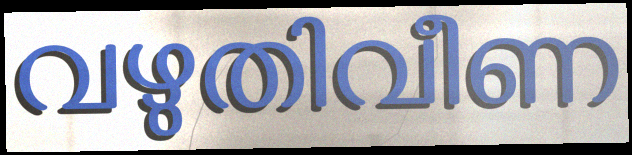
വഴുതിവീണ